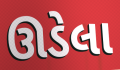
ઊડેલા